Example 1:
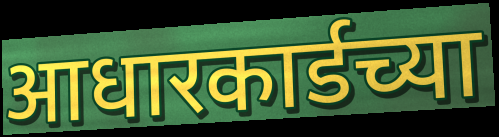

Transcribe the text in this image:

आधारकार्डच्या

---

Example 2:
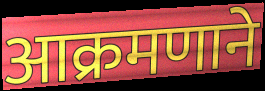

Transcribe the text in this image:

आक्रमणाने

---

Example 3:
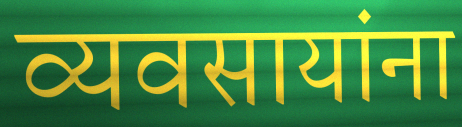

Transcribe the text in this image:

व्यवसायांना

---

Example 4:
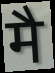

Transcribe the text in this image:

मै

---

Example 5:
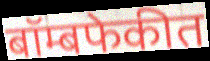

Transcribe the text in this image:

बॉम्बफेकीत